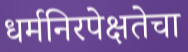
धर्मनिरपेक्षतेचा